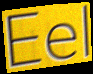
Eel